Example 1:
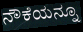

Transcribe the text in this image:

ನೌಕೆಯನ್ನೂ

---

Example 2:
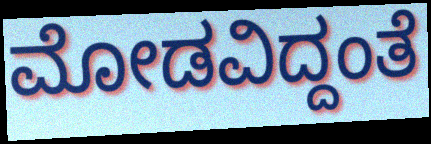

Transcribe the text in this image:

ಮೋಡವಿದ್ದಂತೆ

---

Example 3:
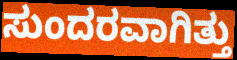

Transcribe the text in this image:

ಸುಂದರವಾಗಿತ್ತು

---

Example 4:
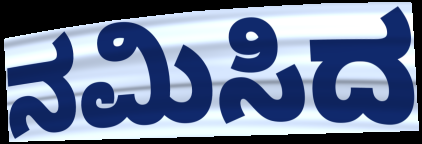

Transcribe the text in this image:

ನಮಿಸಿದ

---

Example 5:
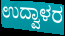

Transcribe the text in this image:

ಉದ್ವಾಳರ